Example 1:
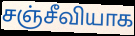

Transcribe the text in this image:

சஞ்சீவியாக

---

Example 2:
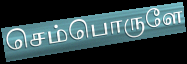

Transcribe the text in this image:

செம்பொருளே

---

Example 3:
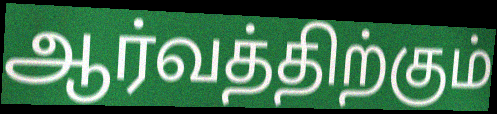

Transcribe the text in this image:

ஆர்வத்திற்கும்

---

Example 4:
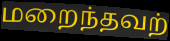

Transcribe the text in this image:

மறைந்தவற்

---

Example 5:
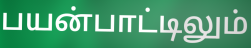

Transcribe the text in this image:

பயன்பாட்டிலும்